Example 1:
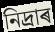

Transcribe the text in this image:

নিদ্ৰাৰ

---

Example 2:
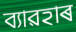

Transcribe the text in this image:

ব্যাৱহাৰ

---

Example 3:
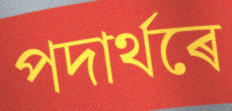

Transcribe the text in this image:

পদাৰ্থৰে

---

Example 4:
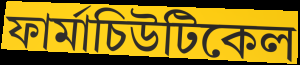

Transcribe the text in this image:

ফাৰ্মাচিউটিকেল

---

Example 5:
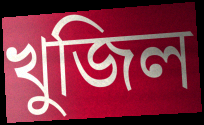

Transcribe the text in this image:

খুজিল